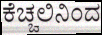
ಕೆಚ್ಚಲಿನಿಂದ